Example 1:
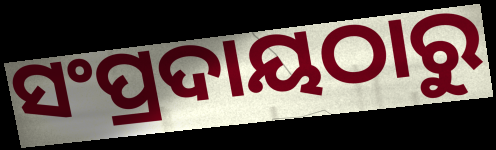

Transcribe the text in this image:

ସଂପ୍ରଦାୟଠାରୁ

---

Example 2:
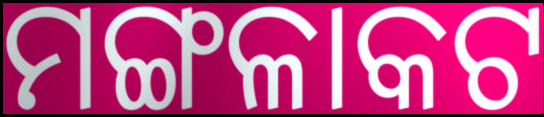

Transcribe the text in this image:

ମଙ୍ଗଳାକଟ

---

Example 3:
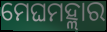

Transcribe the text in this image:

ମେଘମହ୍ଲାର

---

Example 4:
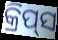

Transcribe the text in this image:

କ୍ରିପ୍‍ସ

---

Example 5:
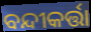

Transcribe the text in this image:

ବନ୍ଦୀକର୍ତ୍ତା